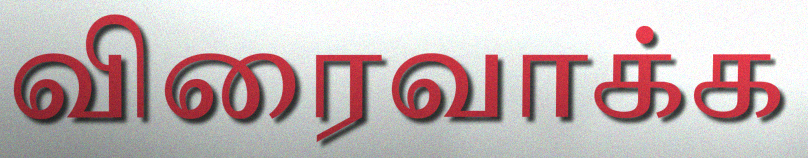
விரைவாக்க